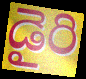
డైరి